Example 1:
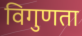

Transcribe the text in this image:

विगुणता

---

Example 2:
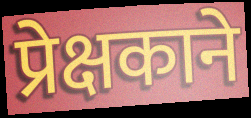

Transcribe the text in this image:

प्रेक्षकाने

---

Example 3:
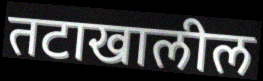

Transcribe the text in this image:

तटाखालील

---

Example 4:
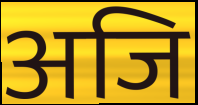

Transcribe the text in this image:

अजि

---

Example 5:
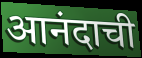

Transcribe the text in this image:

आनंदाची